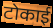
टोकाई